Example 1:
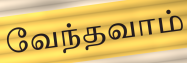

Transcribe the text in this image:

வேந்தவாம்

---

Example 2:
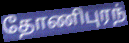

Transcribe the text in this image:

தோணிபுரந்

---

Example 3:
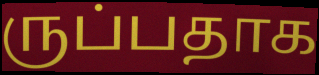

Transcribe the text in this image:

ருப்பதாக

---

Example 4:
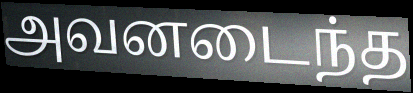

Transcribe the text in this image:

அவனடைந்த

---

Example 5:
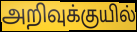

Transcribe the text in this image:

அறிவுக்குயில்